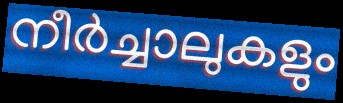
നീർച്ചാലുകളും